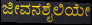
ಜೀವನಶೈಲಿಯೇ